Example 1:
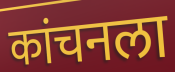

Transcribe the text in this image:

कांचनला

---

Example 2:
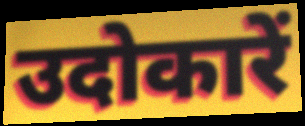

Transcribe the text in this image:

उदोकारें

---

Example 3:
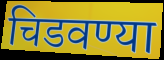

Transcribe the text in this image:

चिडवण्या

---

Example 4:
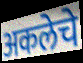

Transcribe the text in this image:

अकलेचे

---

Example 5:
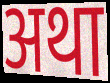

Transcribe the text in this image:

अथा